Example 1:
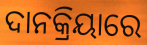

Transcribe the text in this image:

ଦାନକ୍ରିୟାରେ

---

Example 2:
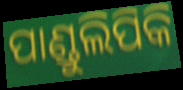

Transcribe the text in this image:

ପାଣ୍ଡୁଲିପିକି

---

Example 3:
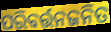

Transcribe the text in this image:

ପରିବର୍ତ୍ତନଜନିତ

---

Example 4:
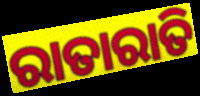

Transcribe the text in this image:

ରାତାରାତି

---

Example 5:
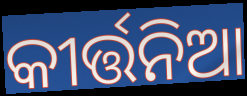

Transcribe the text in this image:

କୀର୍ତ୍ତନିଆ